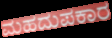
ಮಹದುಪಕಾರ